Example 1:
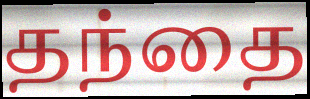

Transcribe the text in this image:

தந்தை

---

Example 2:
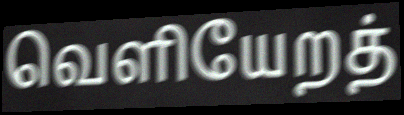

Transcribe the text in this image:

வெளியேறத்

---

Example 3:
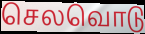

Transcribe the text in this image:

செலவொடு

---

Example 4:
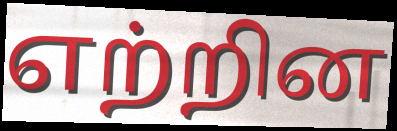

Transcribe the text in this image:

எற்றின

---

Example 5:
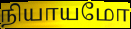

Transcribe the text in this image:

நியாயமோ